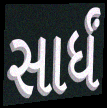
સાર્ધં